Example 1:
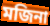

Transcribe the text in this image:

মজিনা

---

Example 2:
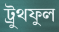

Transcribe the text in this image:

ট্রুথফুল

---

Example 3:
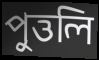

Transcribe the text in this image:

পুত্তলি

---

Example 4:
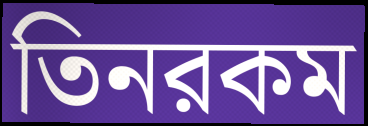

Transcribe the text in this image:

তিনরকম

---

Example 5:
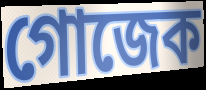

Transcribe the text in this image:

গোজেক